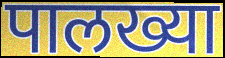
पालख्या